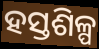
ହସ୍ତଶିଳ୍ପ